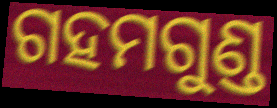
ଗହମଗୁଣ୍ଡ